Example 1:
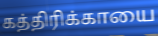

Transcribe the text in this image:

கத்திரிக்காயை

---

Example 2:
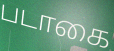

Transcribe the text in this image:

படாகை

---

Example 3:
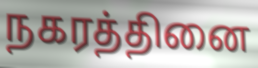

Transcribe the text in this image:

நகரத்தினை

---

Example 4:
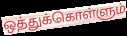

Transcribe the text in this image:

ஒத்துக்கொள்ளும்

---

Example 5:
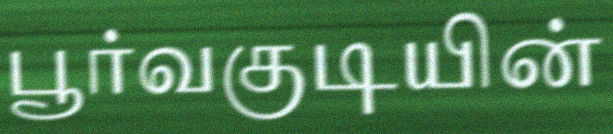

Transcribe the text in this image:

பூர்வகுடியின்